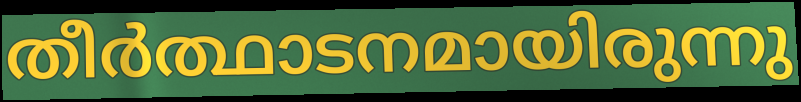
തീർത്ഥാടനമായിരുന്നു